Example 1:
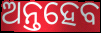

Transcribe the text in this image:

ଅନ୍ତହେବ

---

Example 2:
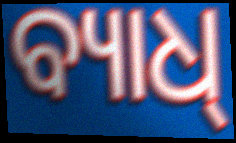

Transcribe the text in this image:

ବ୍ୟାଧ୍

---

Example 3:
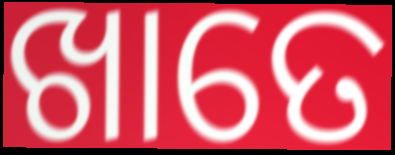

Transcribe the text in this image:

ଖାତେ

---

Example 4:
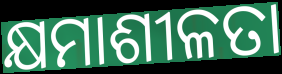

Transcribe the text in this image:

କ୍ଷମାଶୀଳତା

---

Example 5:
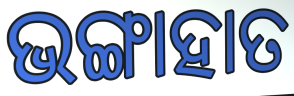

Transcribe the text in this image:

ଭଙ୍ଗାହାତ